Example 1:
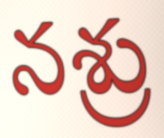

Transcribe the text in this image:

నశ్రు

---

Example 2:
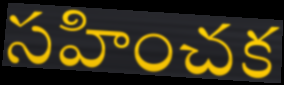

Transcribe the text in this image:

సహించక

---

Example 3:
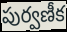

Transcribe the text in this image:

పుర్వణీక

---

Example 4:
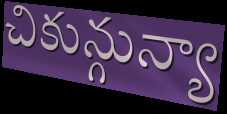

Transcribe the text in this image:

చికున్గున్యా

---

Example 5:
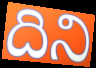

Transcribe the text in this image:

దిని